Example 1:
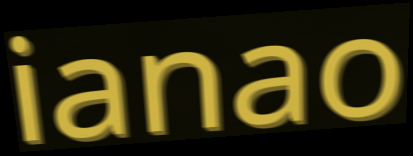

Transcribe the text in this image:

ianao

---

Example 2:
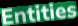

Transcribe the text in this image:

Entities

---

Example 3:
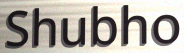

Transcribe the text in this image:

Shubho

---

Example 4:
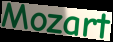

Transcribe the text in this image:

Mozart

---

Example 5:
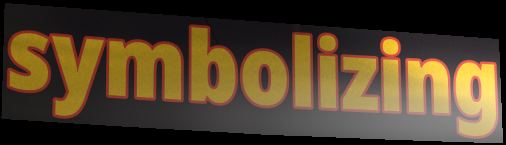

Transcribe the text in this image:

symbolizing